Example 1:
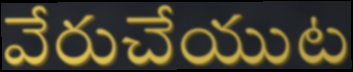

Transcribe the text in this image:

వేరుచేయుట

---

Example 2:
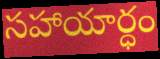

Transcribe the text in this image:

సహాయార్ధం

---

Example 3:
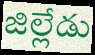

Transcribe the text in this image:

జిల్లేడు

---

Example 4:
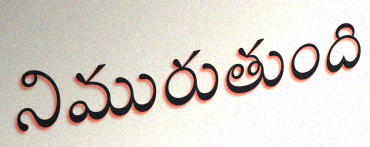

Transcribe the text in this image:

నిమురుతుంది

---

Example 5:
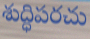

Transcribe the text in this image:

శుద్ధిపరచు